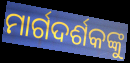
ମାର୍ଗଦର୍ଶକଙ୍କୁ